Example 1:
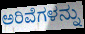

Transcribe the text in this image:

ಅರಿವೆಗಳನ್ನು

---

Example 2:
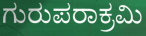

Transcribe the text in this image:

ಗುರುಪರಾಕ್ರಮಿ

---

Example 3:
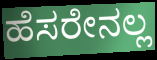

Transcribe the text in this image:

ಹೆಸರೇನಲ್ಲ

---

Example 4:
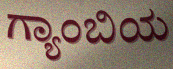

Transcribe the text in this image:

ಗ್ಯಾಂಬಿಯ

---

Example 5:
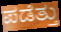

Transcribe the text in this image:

ಪಡೆತ್ತು